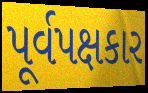
પૂર્વપક્ષકાર